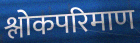
श्लोकपरिमाण